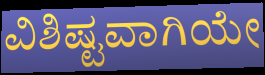
ವಿಶಿಷ್ಟವಾಗಿಯೇ